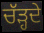
ਚੱੜ੍ਹਦੇ